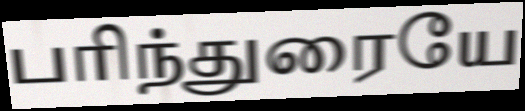
பரிந்துரையே